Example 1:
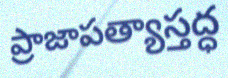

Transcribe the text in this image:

ప్రాజాపత్యాస్తద్ధ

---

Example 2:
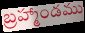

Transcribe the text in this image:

బ్రహ్మాండము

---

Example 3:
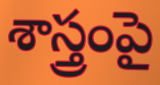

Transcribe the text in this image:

శాస్త్రంపై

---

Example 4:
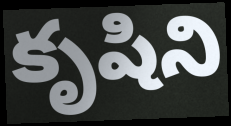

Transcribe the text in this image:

కృషిని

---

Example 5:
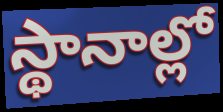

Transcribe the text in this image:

స్థానాల్లో